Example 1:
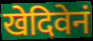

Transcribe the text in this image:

खेदिवेनं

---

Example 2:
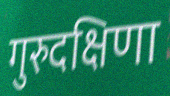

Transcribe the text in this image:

गुरुदक्षिणा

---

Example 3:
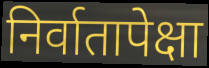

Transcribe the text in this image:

निर्वातापेक्षा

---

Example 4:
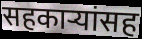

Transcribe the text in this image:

सहकाऱ्यांसह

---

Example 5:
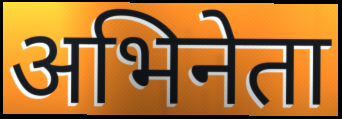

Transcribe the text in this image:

अभिनेता